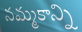
నమ్మకాన్ని